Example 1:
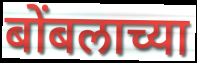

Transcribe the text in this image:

बोंबलाच्या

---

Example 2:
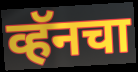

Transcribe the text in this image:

व्हॅनचा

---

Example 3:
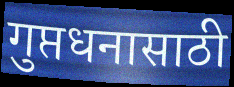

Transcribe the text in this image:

गुप्तधनासाठी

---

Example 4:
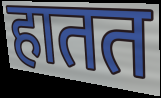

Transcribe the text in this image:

हातत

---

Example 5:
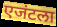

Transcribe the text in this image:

एजंटला